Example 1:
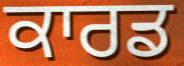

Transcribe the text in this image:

ਕਾਰਡ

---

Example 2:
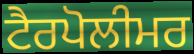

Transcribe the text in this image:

ਟੈਰਪੋਲੀਮਰ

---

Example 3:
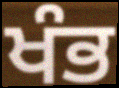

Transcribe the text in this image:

ਖੰਭ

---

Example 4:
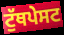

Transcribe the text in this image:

ਟੁੱਥਪੇਸਟ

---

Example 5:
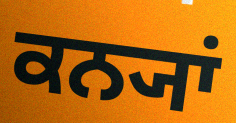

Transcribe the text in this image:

ਕਨ੍ਯਾਂ